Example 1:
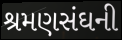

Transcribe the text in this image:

શ્રમણસંઘની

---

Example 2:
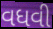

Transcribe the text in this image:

વધવી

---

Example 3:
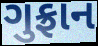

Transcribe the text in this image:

ગુફ્રાન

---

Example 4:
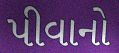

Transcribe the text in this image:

પીવાનો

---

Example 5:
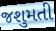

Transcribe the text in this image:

જશુમતી